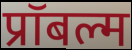
प्रॉबल्म